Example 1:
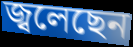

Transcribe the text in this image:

জ্বলেছেন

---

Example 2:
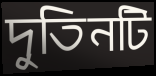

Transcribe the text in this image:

দুতিনটি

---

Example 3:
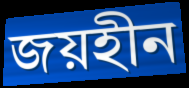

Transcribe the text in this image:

জয়হীন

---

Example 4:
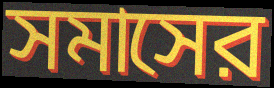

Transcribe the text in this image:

সমাসের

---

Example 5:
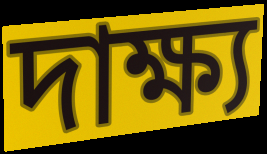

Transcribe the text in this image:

দাক্ষ্য